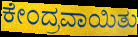
ಕೇಂದ್ರವಾಯಿತು